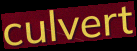
culvert